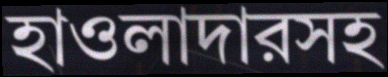
হাওলাদারসহ